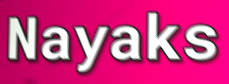
Nayaks